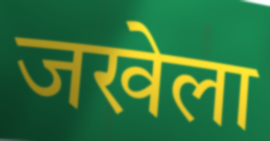
जखेला